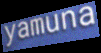
yamuna